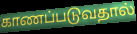
காணப்படுவதால்